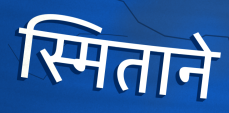
स्मिताने